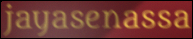
jayasenassa